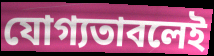
যোগ্যতাবলেই